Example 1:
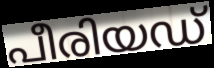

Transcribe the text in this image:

പീരിയഡ്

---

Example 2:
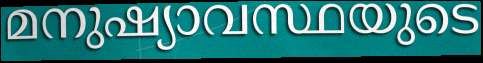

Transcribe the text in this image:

മനുഷ്യാവസ്ഥയുടെ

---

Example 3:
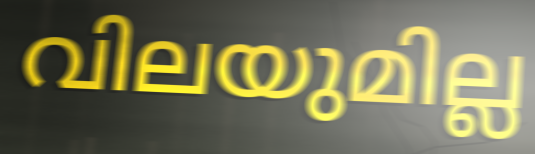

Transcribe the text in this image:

വിലയുമില്ല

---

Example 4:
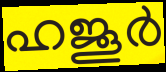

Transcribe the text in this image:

ഹജൂർ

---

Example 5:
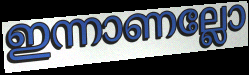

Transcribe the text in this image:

ഇന്നാണല്ലോ